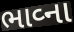
ભાવ્ના